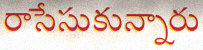
రాసేసుకున్నారు